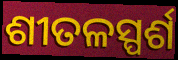
ଶୀତଳସ୍ପର୍ଶ